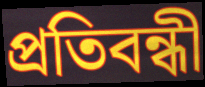
প্রতিবন্ধী